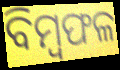
ବିମ୍ୱଫଳ